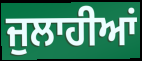
ਜੁਲਾਹੀਆਂ